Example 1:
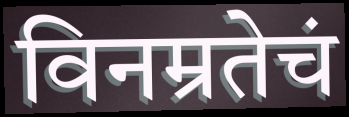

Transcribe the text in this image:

विनम्रतेचं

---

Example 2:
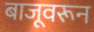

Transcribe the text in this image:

बाजूवरून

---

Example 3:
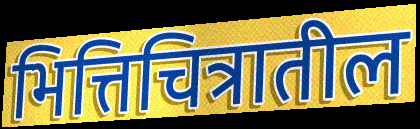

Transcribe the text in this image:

भित्तिचित्रातील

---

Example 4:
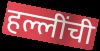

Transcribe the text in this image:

हल्लींची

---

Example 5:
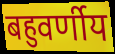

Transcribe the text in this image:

बहुवर्णीय